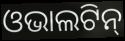
ଓଭାଲଟିନ୍